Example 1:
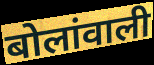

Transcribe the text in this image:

बोलांवाली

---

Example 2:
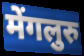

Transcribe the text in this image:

मेंगलुरु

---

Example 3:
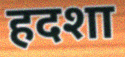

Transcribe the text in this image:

हदशा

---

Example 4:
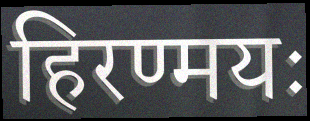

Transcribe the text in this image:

हिरण्मयः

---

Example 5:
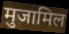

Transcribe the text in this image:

मुजामिल